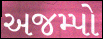
અજમ્પો